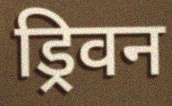
ड्रिवन